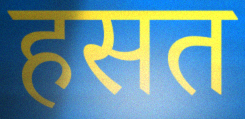
हसत